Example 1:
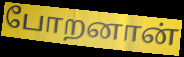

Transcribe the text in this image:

போறனான்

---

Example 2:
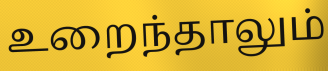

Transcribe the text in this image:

உறைந்தாலும்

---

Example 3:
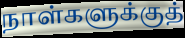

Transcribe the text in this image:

நாள்களுக்குத்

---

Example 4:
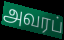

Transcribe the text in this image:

அவரப்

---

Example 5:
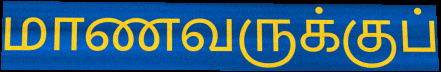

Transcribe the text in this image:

மாணவருக்குப்